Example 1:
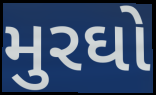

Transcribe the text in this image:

મુરઘો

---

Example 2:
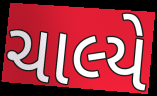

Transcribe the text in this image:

ચાલ્યે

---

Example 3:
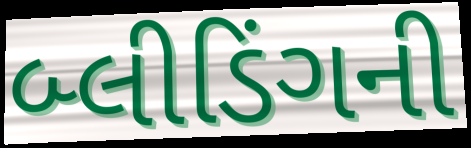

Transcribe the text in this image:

બ્લીડિંગની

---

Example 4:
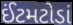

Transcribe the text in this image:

ઈંટમટોડાં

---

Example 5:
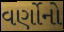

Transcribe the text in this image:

વર્ણોનો